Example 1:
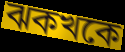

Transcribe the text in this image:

ঝকখকে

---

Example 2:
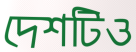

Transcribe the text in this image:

দেশটিও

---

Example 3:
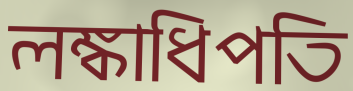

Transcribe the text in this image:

লঙ্কাধিপতি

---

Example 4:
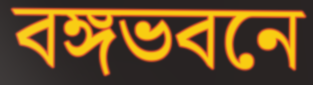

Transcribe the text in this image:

বঙ্গভবনে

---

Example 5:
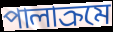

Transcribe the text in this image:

পালাক্রমে